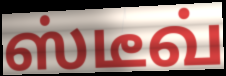
ஸ்டீவ்